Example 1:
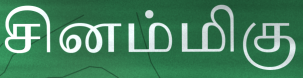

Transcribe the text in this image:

சினம்மிகு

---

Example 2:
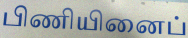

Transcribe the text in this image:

பிணியினைப்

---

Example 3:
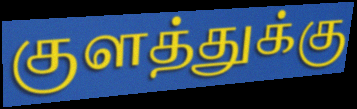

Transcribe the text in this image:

குளத்துக்கு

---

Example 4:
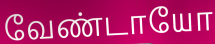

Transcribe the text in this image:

வேண்டாயோ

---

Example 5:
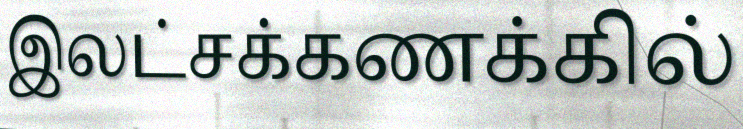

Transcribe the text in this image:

இலட்சக்கணக்கில்